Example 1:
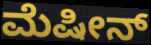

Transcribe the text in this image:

ಮೆಷೀನ್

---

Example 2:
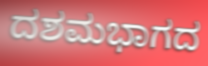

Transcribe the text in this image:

ದಶಮಭಾಗದ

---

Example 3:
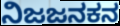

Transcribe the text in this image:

ನಿಜಜನಕನ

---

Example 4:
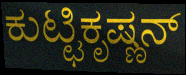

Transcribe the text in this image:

ಕುಟ್ಟಿಕೃಷ್ಣನ್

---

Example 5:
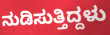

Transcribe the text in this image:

ನುಡಿಸುತ್ತಿದ್ದಳು